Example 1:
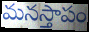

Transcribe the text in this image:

మనస్తాపం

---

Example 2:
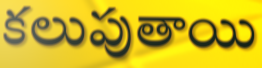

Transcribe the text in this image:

కలుపుతాయి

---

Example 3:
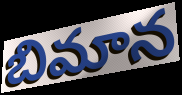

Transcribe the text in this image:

బిమాన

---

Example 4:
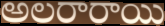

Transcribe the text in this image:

అలరారాయి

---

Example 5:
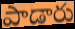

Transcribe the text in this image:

పాడారు